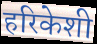
हरिकेशी